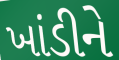
ખાંડીને